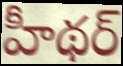
హీథర్